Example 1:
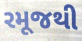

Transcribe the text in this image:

રમૂજથી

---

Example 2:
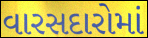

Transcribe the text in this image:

વારસદારોમાં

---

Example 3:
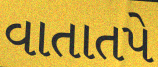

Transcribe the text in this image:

વાતાતપે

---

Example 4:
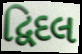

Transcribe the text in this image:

દ્વિદલ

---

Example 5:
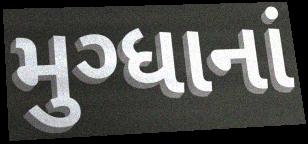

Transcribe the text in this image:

મુગ્ધાનાં